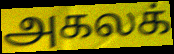
அகலக்